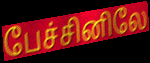
பேச்சினிலே